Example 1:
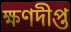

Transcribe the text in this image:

ক্ষণদীপ্ত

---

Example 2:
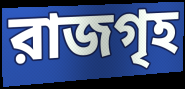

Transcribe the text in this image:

রাজগৃহ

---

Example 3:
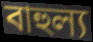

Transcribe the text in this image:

বাহুল্য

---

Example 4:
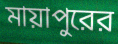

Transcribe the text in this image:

মায়াপুরের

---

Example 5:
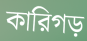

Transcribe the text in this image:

কারিগড়